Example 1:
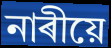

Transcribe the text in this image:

নাৰীয়ে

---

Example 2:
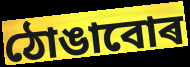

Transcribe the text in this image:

ঠোঙাবোৰ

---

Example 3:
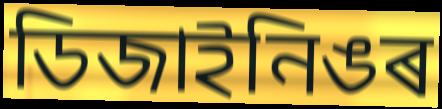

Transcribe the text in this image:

ডিজাইনিঙৰ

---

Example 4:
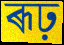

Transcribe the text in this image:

ৰূঢ়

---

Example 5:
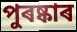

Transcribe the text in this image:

পুৰষ্কাৰ